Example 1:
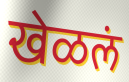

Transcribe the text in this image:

खेळलं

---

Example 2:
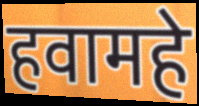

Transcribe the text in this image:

हवामहे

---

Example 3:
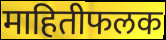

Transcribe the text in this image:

माहितीफलक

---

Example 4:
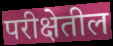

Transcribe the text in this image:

परीक्षेतील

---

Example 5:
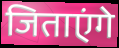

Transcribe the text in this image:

जिताएंगे